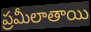
ప్రమీలాతాయి